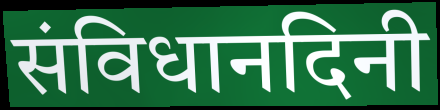
संविधानदिनी